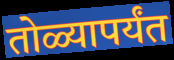
तोळ्यापर्यंत